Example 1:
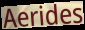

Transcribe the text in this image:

Aerides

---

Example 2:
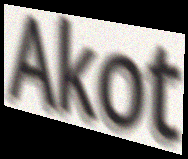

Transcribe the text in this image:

Akot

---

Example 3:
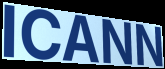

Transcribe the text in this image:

ICANN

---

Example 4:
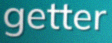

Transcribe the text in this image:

getter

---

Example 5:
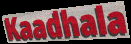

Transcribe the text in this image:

Kaadhala